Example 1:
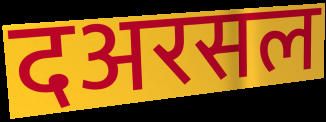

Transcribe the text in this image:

दअरसल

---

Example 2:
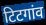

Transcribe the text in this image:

टिटगांव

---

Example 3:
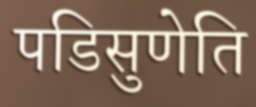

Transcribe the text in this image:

पडिसुणेति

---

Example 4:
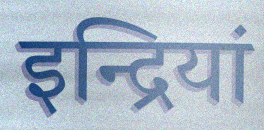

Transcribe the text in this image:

इन्द्रियां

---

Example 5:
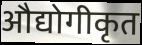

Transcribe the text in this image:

औद्योगीकृत